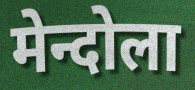
मेन्दोला